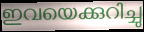
ഇവയെക്കുറിച്ചു